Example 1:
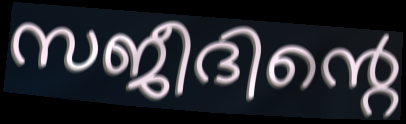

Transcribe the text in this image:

സജീദിന്റെ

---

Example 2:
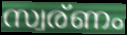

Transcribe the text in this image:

സ്വര്ണം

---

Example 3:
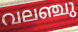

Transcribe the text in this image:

വലഞ്ചു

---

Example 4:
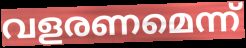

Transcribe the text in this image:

വളരണമെന്ന്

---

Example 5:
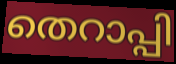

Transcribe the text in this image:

തെറാപ്പി